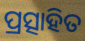
ପ୍ରତ୍ସାହିତ